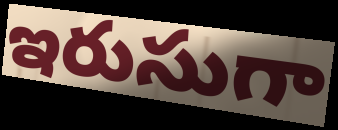
ఇరుసుగా